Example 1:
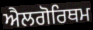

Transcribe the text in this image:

ਐਲਗੋਰਿਥਮ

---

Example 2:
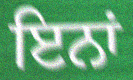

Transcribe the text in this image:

ਇਨਾਂ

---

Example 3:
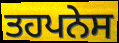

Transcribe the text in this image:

ਤਹਪਨੇਸ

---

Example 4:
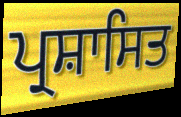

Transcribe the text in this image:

ਪ੍ਰਸ਼ਾਸਿਤ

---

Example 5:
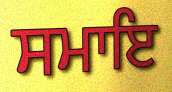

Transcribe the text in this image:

ਸਮਾਇ